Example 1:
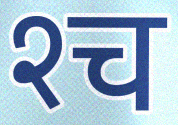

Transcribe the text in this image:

श्च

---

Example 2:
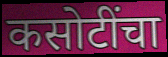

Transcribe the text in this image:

कसोटींचा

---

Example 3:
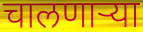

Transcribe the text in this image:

चालणाऱ्या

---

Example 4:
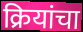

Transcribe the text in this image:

क्रियांचा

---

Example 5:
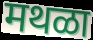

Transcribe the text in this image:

मथळा